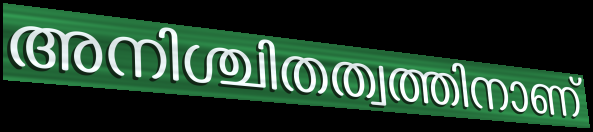
അനിശ്ചിതത്വത്തിനാണ്